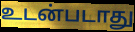
உடன்படாது